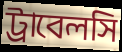
ট্রাবেলসি